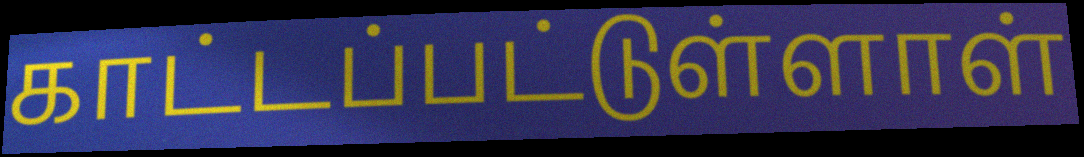
காட்டப்பட்டுள்ளாள்